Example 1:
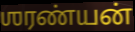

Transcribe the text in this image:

ஶரண்யன்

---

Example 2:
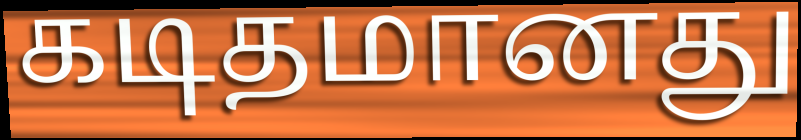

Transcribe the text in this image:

கடிதமானது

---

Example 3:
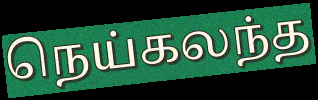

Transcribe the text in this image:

நெய்கலந்த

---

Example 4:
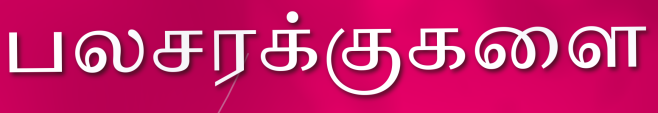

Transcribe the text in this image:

பலசரக்குகளை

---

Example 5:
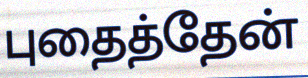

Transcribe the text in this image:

புதைத்தேன்